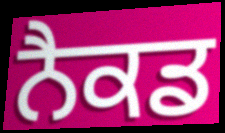
ਨੈਕਡ